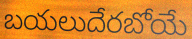
బయలుదేరబోయే